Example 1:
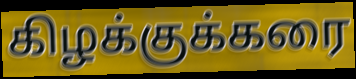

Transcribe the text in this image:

கிழக்குக்கரை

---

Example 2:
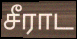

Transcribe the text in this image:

சீராட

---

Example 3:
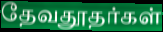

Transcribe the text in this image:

தேவதூதர்கள்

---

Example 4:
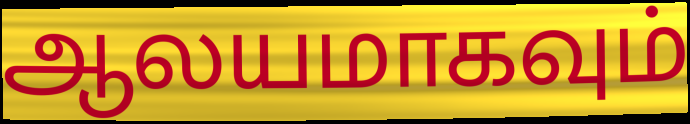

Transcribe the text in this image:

ஆலயமாகவும்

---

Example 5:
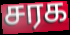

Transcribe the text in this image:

சரக